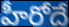
హీరోదే